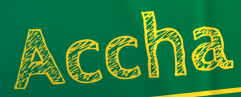
Accha